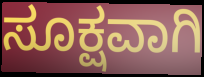
ಸೂಕ್ಷವಾಗಿ